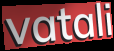
vatali